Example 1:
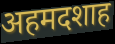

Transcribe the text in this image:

अहमदशाह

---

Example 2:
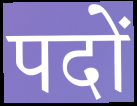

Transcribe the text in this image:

पदों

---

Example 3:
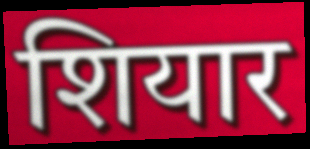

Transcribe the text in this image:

शियार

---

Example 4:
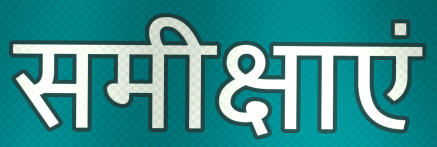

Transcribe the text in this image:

समीक्षाएं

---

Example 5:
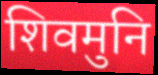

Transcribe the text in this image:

शिवमुनि